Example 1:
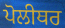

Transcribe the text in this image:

ਪੋਲੀਥਰ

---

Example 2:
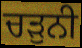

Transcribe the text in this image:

ਚੜੁਨੀ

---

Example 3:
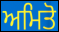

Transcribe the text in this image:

ਅਮਿਤੋ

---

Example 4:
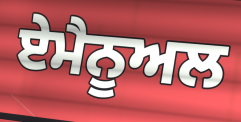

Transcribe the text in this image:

ਏਮੈਨੂਅਲ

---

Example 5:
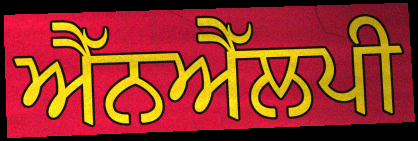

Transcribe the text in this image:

ਐੱਨਐੱਲਪੀ